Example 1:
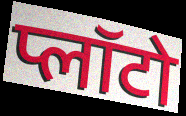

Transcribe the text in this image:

प्लॉटो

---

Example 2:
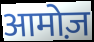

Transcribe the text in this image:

आमोज़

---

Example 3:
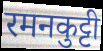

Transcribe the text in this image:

रमनकुट्टी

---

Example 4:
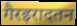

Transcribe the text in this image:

गैरइरादतन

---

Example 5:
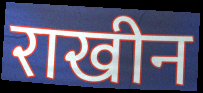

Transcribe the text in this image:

राखीन